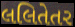
લલિતેતર